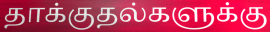
தாக்குதல்களுக்கு